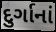
દુર્ગાનાં